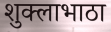
शुक्लाभाठा